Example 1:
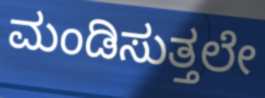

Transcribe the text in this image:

ಮಂಡಿಸುತ್ತಲೇ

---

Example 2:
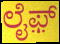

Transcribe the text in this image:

ಲೈಫ಼್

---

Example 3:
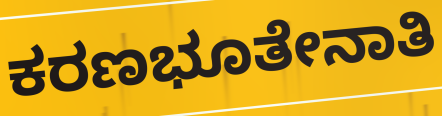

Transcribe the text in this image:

ಕರಣಭೂತೇನಾತಿ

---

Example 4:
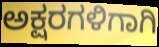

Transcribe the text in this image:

ಅಕ್ಷರಗಳಿಗಾಗಿ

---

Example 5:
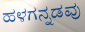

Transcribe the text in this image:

ಹಳಗನ್ನಡವು